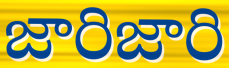
జారిజారి